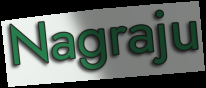
Nagraju